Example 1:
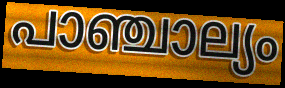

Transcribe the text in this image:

പാഞ്ചാല്യം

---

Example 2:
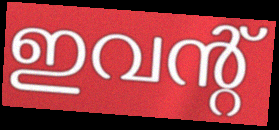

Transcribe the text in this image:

ഇവന്റ്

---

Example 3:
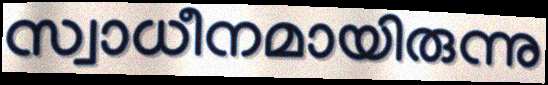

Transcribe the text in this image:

സ്വാധീനമായിരുന്നു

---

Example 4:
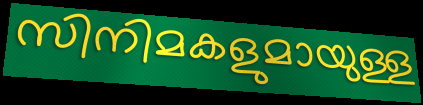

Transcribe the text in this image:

സിനിമകളുമായുള്ള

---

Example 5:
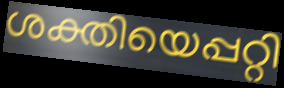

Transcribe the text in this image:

ശക്തിയെപ്പറ്റി